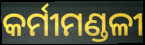
କର୍ମୀମଣ୍ଡଳୀ